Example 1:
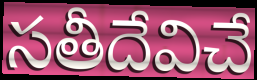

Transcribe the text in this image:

సతీదేవిచే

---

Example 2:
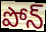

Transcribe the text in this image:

పోన్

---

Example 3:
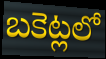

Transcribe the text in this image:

బకెట్లలో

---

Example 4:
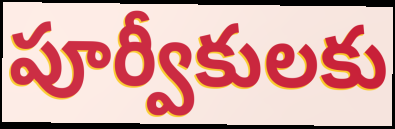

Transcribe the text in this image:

పూర్వీకులకు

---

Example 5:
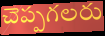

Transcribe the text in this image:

చెప్పగలరు